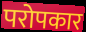
परोपकार